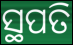
ସ୍ଥପତି